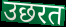
उछरत